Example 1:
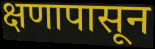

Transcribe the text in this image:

क्षणापासून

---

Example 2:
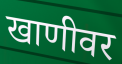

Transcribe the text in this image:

खाणीवर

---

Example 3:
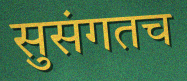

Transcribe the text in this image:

सुसंगतच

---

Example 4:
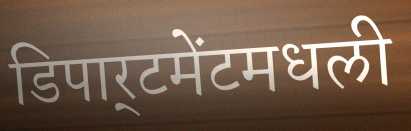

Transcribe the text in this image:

डिपार्टमेंटमधली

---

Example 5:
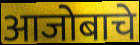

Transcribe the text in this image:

आजोबाचे